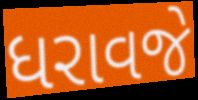
ધરાવજે